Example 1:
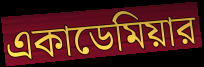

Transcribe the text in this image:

একাডেমিয়ার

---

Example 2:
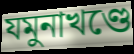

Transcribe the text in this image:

যমুনাখণ্ডে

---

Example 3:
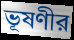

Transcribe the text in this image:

ভূষণীর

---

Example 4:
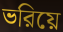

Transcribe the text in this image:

ভরিয়ে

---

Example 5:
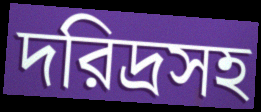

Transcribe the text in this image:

দরিদ্রসহ